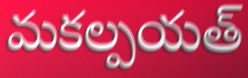
మకల్పయత్